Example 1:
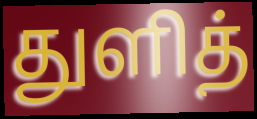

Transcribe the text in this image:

துளித்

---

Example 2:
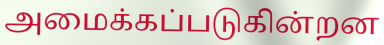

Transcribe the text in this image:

அமைக்கப்படுகின்றன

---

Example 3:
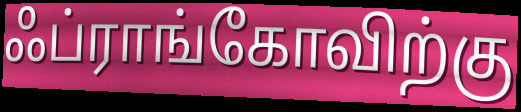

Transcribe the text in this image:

ஃப்ராங்கோவிற்கு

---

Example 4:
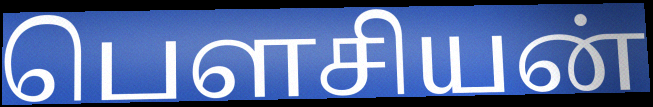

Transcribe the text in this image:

பௌசியன்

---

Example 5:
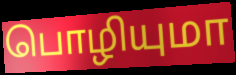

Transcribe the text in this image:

பொழியுமா